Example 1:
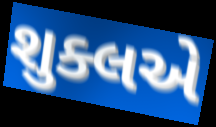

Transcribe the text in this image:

શુક્લએ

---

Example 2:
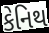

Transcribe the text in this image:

કેનિથ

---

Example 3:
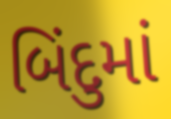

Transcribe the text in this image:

બિંદુમાં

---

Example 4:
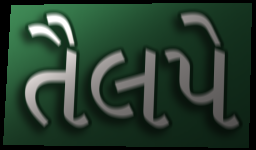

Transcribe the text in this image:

તૈલપે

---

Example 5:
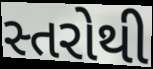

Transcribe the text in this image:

સ્તરોથી